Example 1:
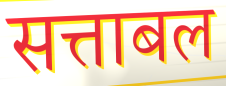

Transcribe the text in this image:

सत्ताबल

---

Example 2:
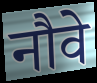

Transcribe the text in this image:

नौवे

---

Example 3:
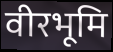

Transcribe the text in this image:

वीरभूमि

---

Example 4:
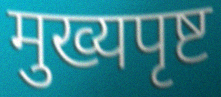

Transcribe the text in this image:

मुख्यपृष्ट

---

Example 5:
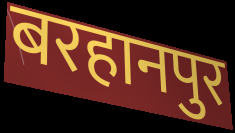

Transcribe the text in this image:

बरहानपुर